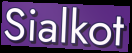
Sialkot